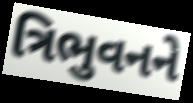
ત્રિભુવનને